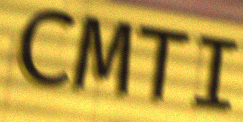
CMTI